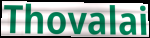
Thovalai